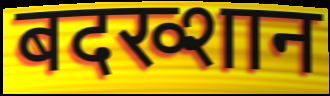
बदख्शान